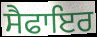
ਸੈਫਾਇਰ